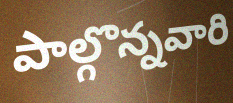
పాల్గొన్నవారి